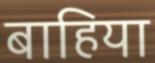
बाहिया